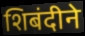
शिबंदीने